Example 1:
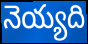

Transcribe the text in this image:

నెయ్యది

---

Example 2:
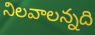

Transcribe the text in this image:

నిలవాలన్నది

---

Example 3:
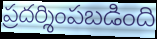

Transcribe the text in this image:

ప్రదర్శింపబడింది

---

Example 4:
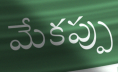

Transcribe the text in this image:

మేకప్పు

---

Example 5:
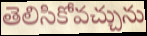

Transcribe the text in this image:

తెలిసికోవచ్చును